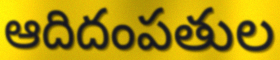
ఆదిదంపతుల